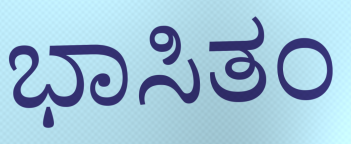
ಭಾಸಿತಂ